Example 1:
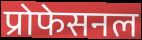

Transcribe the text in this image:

प्रोफेसनल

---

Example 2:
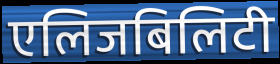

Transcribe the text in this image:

एलिजबिलिटी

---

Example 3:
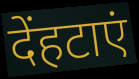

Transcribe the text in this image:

देंहटाएं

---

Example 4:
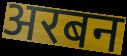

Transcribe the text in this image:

अरबन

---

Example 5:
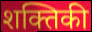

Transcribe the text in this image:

शक्तिकी